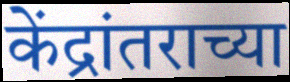
केंद्रांतराच्या